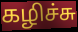
கழிச்சு